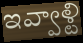
ఇవ్వాళ్టి